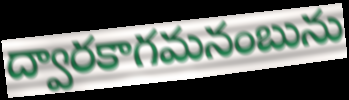
ద్వారకాగమనంబును